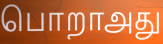
பொறாஅது